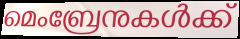
മെംബ്രേനുകൾക്ക്